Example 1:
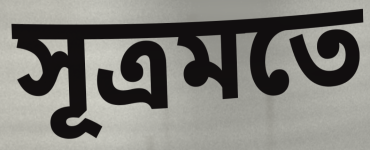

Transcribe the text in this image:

সূত্রমতে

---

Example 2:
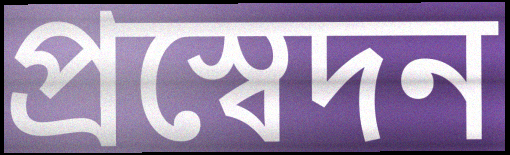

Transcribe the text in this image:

প্রস্বেদন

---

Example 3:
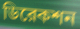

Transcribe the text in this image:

ডিরেকশন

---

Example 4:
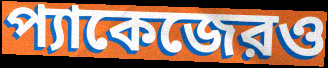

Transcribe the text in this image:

প্যাকেজেরও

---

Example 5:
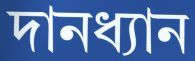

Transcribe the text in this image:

দানধ্যান